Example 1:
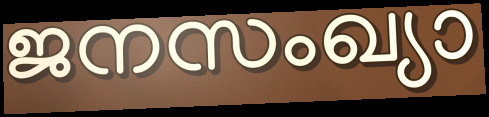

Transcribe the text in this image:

ജനസംഖ്യാ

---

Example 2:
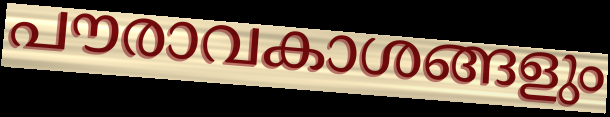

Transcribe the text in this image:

പൗരാവകാശങ്ങളും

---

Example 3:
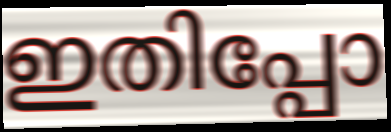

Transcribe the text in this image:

ഇതിപ്പോ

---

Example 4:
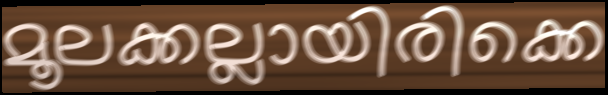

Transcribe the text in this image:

മൂലക്കല്ലായിരിക്കെ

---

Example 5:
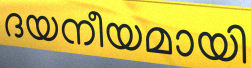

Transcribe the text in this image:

ദയനീയമായി